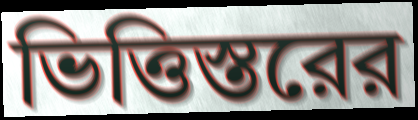
ভিত্তিস্তরের